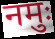
नमुः